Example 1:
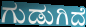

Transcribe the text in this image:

ಗುಡುಗಿದೆ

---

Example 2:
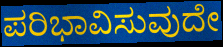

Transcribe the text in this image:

ಪರಿಭಾವಿಸುವುದೇ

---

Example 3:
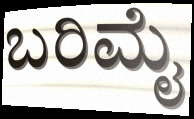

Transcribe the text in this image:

ಬರಿಮೈ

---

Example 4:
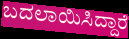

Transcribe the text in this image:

ಬದಲಾಯಿಸಿದ್ದಾರೆ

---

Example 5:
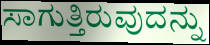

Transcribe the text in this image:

ಸಾಗುತ್ತಿರುವುದನ್ನು